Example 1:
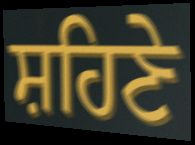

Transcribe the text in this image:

ਸ਼ਹਿਣੇ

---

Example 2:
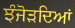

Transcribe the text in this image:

ਝੰਜੋੜਦਿਆਂ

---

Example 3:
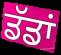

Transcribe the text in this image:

ਡੱਡਾਂ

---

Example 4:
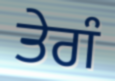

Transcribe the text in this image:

ਤੇਗੰ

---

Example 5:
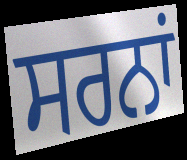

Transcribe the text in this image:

ਸਰਨਾਂ